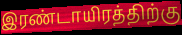
இரண்டாயிரத்திற்கு